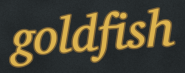
goldfish